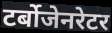
टर्बोजेनरेटर